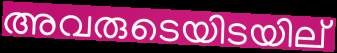
അവരുടെയിടയില്